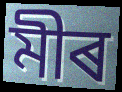
মীৰ